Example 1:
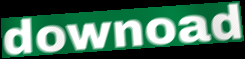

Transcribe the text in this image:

downoad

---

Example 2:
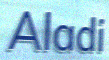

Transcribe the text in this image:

Aladi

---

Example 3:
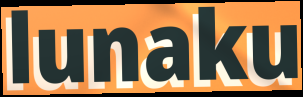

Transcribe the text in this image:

lunaku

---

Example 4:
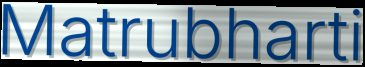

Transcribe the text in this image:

Matrubharti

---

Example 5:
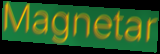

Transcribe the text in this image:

Magnetar